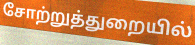
சோற்றுத்துறையில்